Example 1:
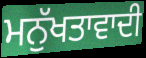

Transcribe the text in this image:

ਮਨੁੱਖਤਾਵਾਦੀ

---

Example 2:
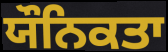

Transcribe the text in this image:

ਯੌਨਿਕਤਾ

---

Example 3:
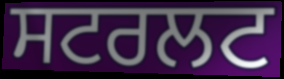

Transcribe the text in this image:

ਸਟਰਲਟ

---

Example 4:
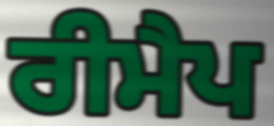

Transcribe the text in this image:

ਰੀਮੈਪ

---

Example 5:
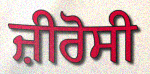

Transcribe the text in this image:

ਜ਼ੀਰੋਸੀ